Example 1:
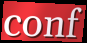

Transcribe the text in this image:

conf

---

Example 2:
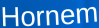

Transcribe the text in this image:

Hornem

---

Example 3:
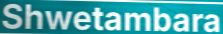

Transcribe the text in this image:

Shwetambara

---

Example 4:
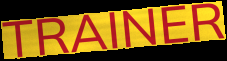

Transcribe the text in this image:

TRAINER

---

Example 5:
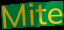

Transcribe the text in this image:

Mite